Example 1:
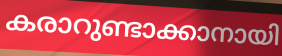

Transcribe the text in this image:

കരാറുണ്ടാക്കാനായി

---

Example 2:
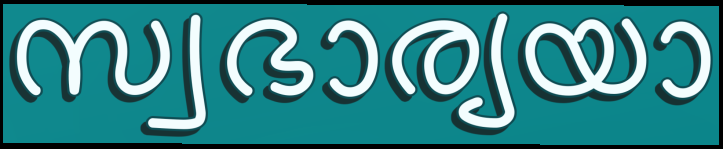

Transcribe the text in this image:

സ്വഭാര്യയാ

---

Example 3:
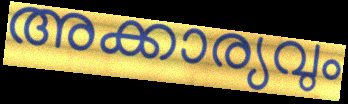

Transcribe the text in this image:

അക്കാര്യവും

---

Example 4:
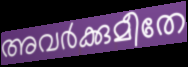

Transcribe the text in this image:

അവർക്കുമീതേ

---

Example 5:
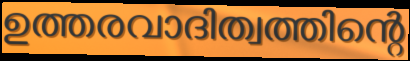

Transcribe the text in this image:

ഉത്തരവാദിത്വത്തിന്റെ